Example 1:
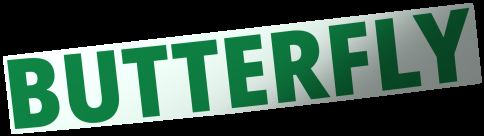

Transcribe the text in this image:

BUTTERFLY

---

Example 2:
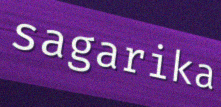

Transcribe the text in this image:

sagarika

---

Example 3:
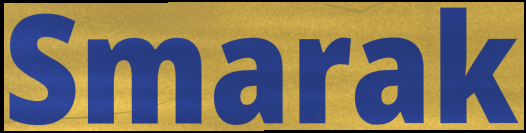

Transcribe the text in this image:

Smarak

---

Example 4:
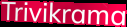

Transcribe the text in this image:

Trivikrama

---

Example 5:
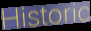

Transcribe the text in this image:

Historic